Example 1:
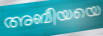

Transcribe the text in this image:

അബീയയെ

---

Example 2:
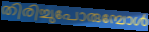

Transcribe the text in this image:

തിരിച്ചുപോരുമ്പോൾ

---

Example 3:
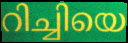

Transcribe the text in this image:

റിച്ചിയെ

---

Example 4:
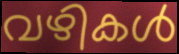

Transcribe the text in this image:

വഴികൾ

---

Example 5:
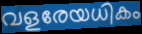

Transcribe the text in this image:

വളരേയധികം